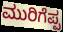
ಮುರಿಗೆಪ್ಪ